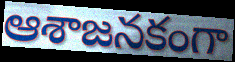
ఆశాజనకంగా